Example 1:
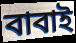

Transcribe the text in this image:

বাবাই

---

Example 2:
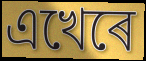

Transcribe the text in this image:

এখেৰে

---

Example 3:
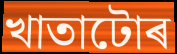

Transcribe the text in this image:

খাতাটোৰ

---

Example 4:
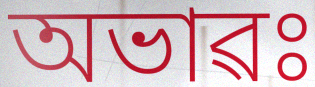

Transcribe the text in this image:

অভাৱঃ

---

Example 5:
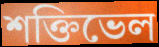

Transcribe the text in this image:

শক্তিভেল